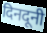
दिनदूनी